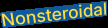
Nonsteroidal